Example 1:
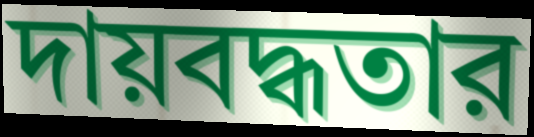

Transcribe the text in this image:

দায়বদ্ধতার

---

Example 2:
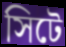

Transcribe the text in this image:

সিটে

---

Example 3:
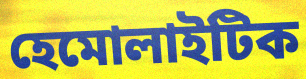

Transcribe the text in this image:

হেমোলাইটিক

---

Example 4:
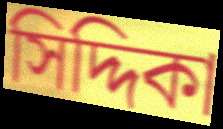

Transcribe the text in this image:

সিদ্দিকা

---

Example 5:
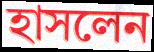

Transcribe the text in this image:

হাসলেন